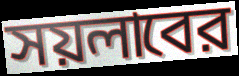
সয়লাবের